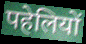
पहेलियों